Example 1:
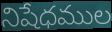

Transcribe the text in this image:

నిషేధముల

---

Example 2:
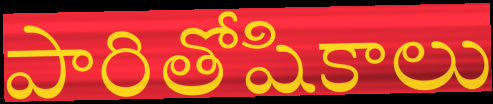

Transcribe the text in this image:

పారితోషికాలు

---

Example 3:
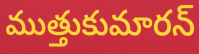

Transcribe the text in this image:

ముత్తుకుమారన్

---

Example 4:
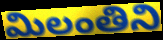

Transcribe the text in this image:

మిలంతిని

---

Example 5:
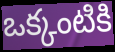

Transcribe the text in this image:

ఒక్కంటికి